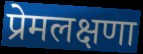
प्रेमलक्षणा